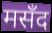
मसँद